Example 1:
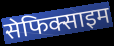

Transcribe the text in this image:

सेफिक्साइम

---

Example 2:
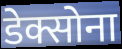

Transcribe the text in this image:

डेक्सोना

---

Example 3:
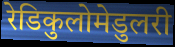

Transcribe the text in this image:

रेडिकुलोमेडुलरी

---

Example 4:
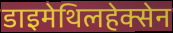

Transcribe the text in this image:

डाइमेथिलहेक्सेन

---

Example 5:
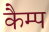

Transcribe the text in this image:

कैम्प